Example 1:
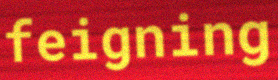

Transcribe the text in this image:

feigning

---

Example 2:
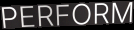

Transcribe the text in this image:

PERFORM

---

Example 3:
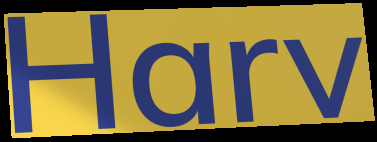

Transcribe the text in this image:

Harv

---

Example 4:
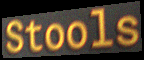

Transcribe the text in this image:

Stools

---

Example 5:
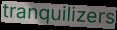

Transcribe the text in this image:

tranquilizers